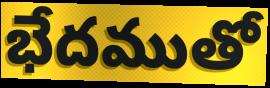
భేదముతో